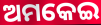
ଅମକେଇ